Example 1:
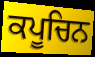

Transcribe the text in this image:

ਕਪੂਚਿਨ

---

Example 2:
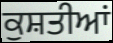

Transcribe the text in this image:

ਕੁਸ਼ਤੀਆਂ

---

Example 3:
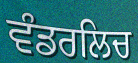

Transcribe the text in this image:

ਵੰਡਰਲਿਚ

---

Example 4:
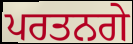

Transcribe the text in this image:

ਪਰਤਨਗੇ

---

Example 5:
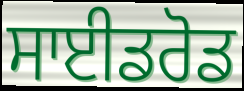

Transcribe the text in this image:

ਸਾਈਡਰੋਡ